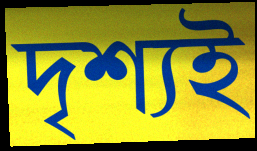
দৃশ্যই